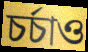
চৰ্চাও